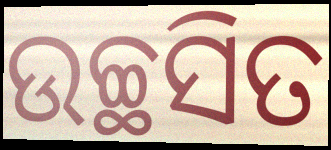
ଉଚ୍ଛସିତ